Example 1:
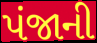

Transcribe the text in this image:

પંજાની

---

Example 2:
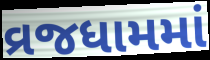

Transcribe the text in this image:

વ્રજધામમાં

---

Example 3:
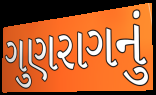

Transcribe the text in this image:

ગુણરાગનું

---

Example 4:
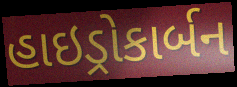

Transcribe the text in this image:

હાઇડ્રોકાર્બન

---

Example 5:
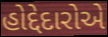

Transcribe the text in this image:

હોદ્દેદારોએ